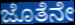
ಜೊತೆನೇ